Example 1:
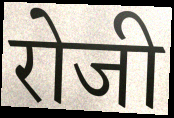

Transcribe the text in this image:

रोजी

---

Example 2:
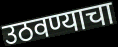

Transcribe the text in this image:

उठवण्याचा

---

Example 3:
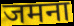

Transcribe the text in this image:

जमना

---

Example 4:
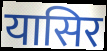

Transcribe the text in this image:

यासिर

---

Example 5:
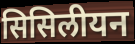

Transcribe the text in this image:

सिसिलीयन